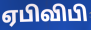
ஏபிவிபி